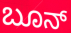
ಬೂನ್